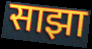
साझा